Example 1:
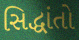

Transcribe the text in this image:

સિદ્ધાંતો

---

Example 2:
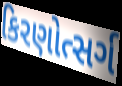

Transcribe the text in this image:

કિરણોત્સર્ગ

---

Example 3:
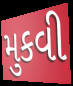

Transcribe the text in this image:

મુકવી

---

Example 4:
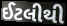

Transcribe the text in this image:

ઈટલીથી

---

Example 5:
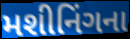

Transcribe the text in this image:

મશીનિંગના